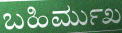
ಬಹಿರ್ಮುಖ